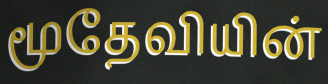
மூதேவியின்